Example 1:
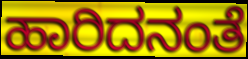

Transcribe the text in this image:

ಹಾರಿದನಂತೆ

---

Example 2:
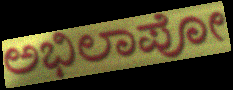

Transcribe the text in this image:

ಅಭಿಲಾಪೋ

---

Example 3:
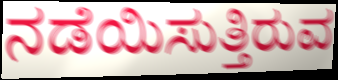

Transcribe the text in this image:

ನಡೆಯಿಸುತ್ತಿರುವ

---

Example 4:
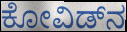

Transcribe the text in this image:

ಕೋವಿಡ್‌ನ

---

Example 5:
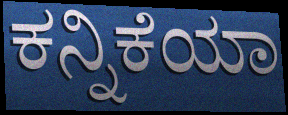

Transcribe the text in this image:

ಕನ್ನಿಕೆಯಾ